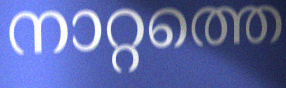
നാറ്റത്തെ